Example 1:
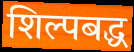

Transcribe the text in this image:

शिल्पबद्ध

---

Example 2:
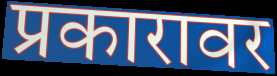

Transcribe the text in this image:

प्रकारावर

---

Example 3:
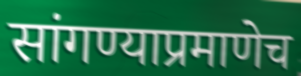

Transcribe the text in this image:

सांगण्याप्रमाणेच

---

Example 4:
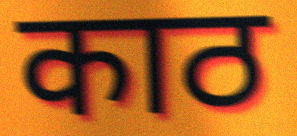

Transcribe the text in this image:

काठ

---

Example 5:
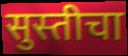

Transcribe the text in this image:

सुस्तीचा